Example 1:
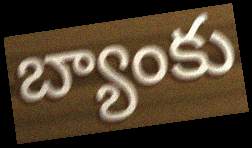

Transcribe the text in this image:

బ్యాంకు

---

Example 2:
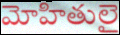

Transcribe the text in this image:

మోహితులై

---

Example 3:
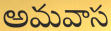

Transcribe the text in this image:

అమవాస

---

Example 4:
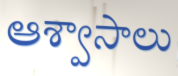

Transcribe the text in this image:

ఆశ్వాసాలు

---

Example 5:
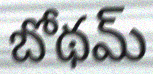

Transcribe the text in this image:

బోథమ్